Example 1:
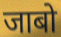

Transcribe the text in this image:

जाबो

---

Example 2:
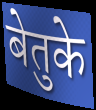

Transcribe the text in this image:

बेतुके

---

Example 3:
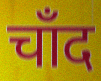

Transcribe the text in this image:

चाँद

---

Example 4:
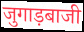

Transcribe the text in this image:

जुगाड़बाजी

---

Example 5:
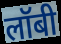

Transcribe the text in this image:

लॉबी